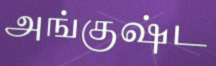
அங்குஷ்ட